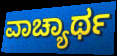
ವಾಚ್ಯಾರ್ಥ